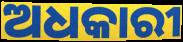
ଅଧକାରୀ